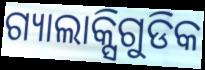
ଗ୍ୟାଲାକ୍ସିଗୁଡିକ